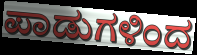
ಪಾಡುಗಳಿಂದ